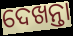
ଦେଖନ୍ତା